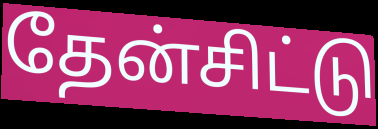
தேன்சிட்டு